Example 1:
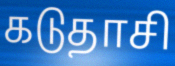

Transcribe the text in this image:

கடுதாசி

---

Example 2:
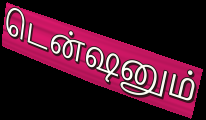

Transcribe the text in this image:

டென்ஷனும்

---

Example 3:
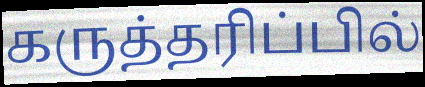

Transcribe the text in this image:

கருத்தரிப்பில்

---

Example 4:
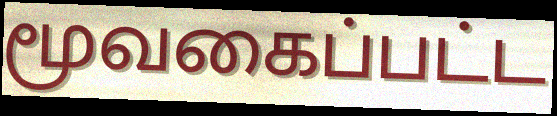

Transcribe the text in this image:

மூவகைப்பட்ட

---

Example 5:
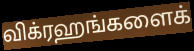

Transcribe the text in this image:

விக்ரஹங்களைக்